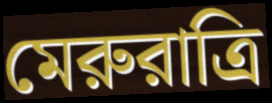
মেরুরাত্রি